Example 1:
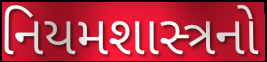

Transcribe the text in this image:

નિયમશાસ્ત્રનો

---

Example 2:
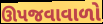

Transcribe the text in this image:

ઊપજવાવાળો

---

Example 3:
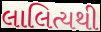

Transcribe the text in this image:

લાલિત્યથી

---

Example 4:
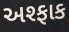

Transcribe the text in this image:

અશ્ફાક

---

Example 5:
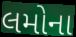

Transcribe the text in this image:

લમોના